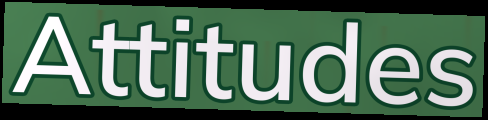
Attitudes